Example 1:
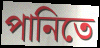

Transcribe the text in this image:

পানিতে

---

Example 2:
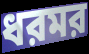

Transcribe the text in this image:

ধরমর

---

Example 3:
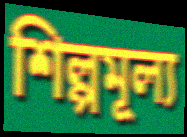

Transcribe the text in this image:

শিল্পমূল্য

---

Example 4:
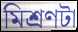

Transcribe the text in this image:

মিশ্রণটা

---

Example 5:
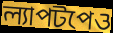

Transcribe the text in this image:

ল্যাপটপেও